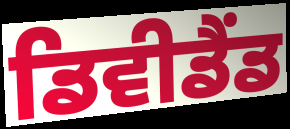
ਡਿਵੀਡੈਂਡ